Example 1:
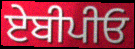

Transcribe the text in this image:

ਏਬੀਪੀਓ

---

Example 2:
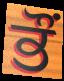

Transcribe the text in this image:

ਭੌਂ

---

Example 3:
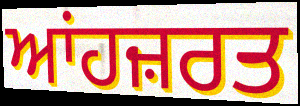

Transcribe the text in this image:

ਆਂਹਜ਼ਰਤ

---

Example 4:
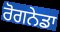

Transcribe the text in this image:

ਰੋਗਨੇਡਾ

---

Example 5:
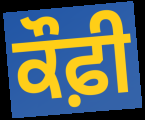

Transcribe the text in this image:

ਕੌਫ਼ੀ